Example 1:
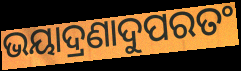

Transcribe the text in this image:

ଭୟାଦ୍ରଣାଦୁପରତଂ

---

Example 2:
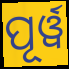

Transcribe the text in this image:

ପୂର୍ୱ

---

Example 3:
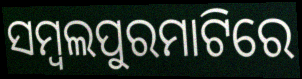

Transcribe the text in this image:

ସମ୍ବଲପୁରମାଟିରେ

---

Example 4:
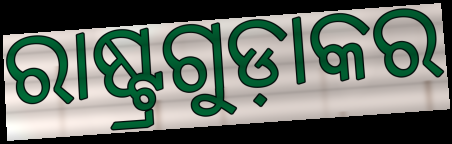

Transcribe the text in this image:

ରାଷ୍ଟ୍ରଗୁଡ଼ାକର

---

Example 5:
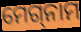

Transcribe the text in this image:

ମେଗ୍‌ନାମ